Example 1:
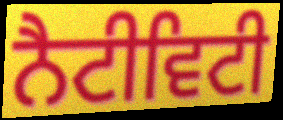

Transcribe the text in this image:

ਨੈਟੀਵਿਟੀ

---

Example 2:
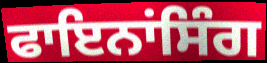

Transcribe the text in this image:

ਫਾਇਨਾਂਸਿੰਗ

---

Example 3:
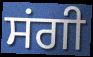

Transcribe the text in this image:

ਸਂਗੀ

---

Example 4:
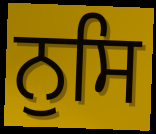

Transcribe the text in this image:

ਨੁਸਿ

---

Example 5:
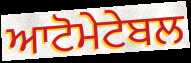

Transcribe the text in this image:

ਆਟੋਮੇਟੇਬਲ